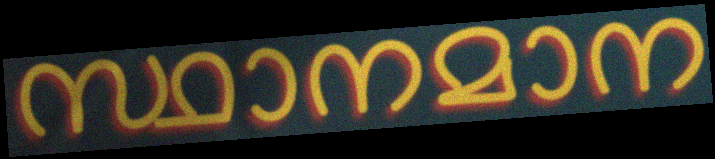
സ്ഥാനമാന